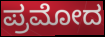
ಪ್ರಮೋದ